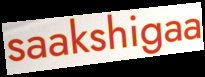
saakshigaa